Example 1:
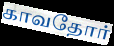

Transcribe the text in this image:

காவதோர்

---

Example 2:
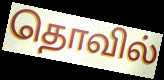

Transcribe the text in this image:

தொவில்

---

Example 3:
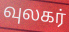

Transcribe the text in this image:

வுலகர்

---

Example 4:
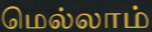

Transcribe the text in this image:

மெல்லாம்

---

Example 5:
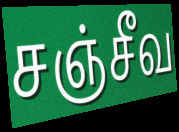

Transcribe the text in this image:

சஞ்சீவ